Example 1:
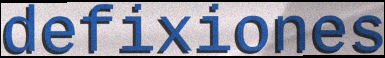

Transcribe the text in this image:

defixiones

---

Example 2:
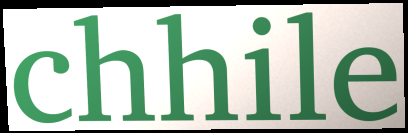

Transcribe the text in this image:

chhile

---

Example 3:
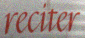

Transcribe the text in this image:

reciter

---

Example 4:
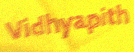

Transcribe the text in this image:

Vidhyapith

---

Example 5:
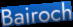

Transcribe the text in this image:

Bairoch